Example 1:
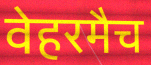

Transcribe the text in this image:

वेहरमैच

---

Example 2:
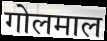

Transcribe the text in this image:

गोलमाल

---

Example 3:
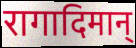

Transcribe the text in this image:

रागादिमान्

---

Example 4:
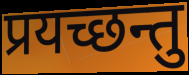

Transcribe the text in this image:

प्रयच्छन्तु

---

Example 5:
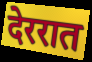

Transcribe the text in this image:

देररात